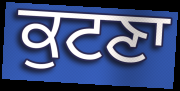
ਕੁਟਣਾ